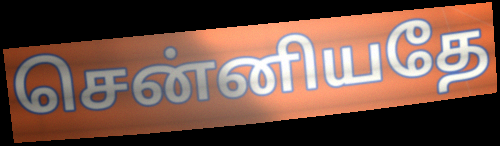
சென்னியதே